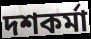
দশকর্মা